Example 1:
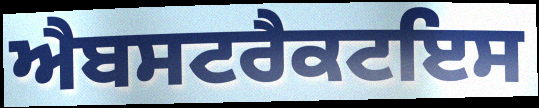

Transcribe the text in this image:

ਐਬਸਟਰੈਕਟਇਸ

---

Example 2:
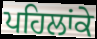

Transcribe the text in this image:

ਪਹਿਲਾਂਕੇ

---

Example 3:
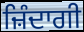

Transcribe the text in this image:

ਜ਼ਿੰਦਾਗੀ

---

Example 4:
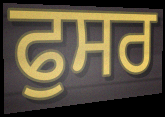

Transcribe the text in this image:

ਫੁਸਰ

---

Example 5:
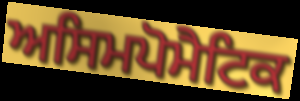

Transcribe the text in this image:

ਅਸਿਮਪੋਮੈਟਿਕ